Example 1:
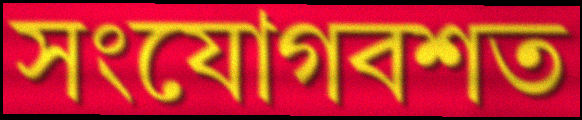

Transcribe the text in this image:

সংযোগবশত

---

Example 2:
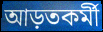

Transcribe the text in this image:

আড়তকর্মী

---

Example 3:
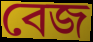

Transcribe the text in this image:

বেজ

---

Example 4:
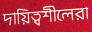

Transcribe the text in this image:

দায়িত্বশীলেরা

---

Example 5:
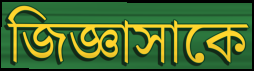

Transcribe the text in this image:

জিজ্ঞাসাকে